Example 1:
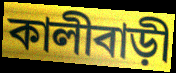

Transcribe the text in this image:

কালীবাড়ী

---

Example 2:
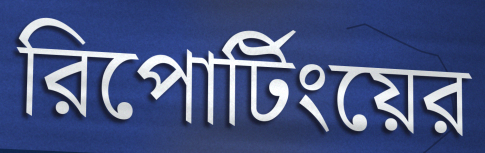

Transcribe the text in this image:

রিপোর্টিংয়ের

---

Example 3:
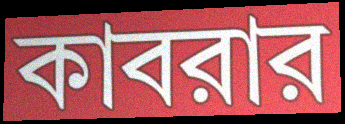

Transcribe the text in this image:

কাবরার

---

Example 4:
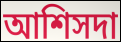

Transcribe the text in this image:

আশিসদা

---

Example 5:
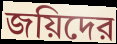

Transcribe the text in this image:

জয়িদের